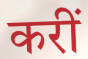
करीं